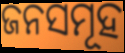
ଜନସମୂହ